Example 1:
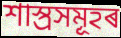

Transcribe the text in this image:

শাস্ত্ৰসমূহৰ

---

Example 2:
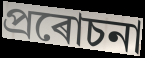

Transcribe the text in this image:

প্ৰৰোচনা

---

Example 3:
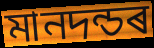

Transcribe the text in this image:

মানদন্ডৰ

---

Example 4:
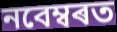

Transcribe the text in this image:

নবেম্বৰত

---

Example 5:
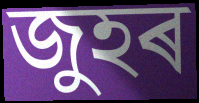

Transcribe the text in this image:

জুহৰ